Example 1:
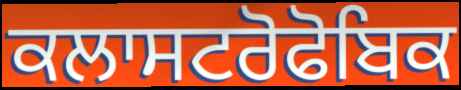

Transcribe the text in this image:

ਕਲਾਸਟਰੋਫੋਬਿਕ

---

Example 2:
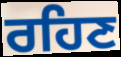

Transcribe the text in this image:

ਰਹਿਣ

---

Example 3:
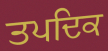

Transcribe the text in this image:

ਤਪਦਿਕ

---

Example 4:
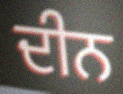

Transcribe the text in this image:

ਦੀਨ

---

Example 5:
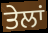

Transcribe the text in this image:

ਤੇਲਾਂ